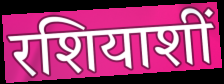
रशियाशीं